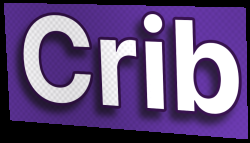
Crib